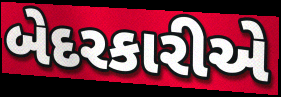
બેદરકારીએ